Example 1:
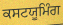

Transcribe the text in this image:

ਕਸਟਯੂਮਿੰਗ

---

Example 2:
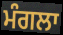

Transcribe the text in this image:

ਮੰਗਲਾ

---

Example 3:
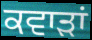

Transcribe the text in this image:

ਕਵਾੜਾਂ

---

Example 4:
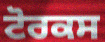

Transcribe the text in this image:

ਟੋਰਕਸ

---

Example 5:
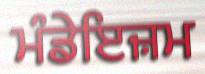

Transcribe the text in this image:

ਮੰਡੇਇਜ਼ਮ